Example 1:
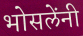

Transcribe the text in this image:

भोसलेंनी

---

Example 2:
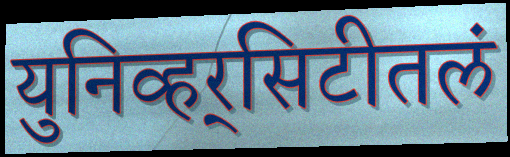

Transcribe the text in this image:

युनिव्हर्सिटीतलं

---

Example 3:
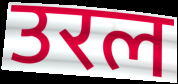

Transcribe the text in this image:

उरल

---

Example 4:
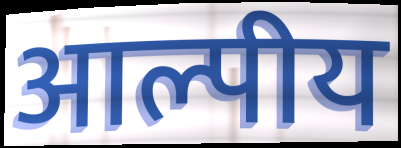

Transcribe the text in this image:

आल्पीय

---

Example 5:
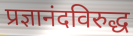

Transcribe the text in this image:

प्रज्ञानंदविरुद्ध